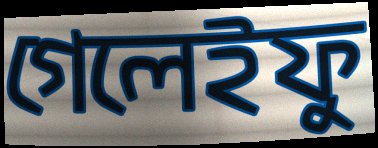
গেলেইফু